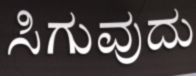
ಸಿಗುವುದು